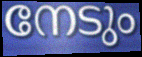
നേടും